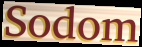
Sodom